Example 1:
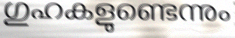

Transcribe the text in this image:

ഗുഹകളുണ്ടെന്നും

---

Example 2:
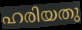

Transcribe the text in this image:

ഹരിയതു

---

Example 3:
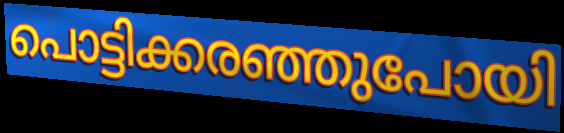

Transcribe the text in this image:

പൊട്ടിക്കരഞ്ഞുപോയി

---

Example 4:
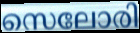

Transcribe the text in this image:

സെലോരി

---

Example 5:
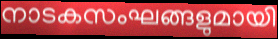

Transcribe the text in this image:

നാടകസംഘങ്ങളുമായി